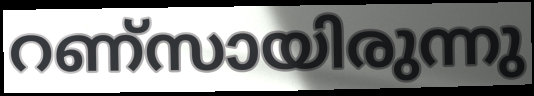
റണ്സായിരുന്നു